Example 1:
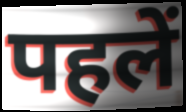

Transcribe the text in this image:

पहलें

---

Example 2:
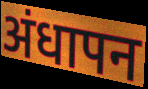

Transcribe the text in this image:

अंधापन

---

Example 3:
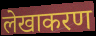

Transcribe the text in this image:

लेखाकरण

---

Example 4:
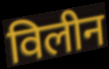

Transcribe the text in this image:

विलीन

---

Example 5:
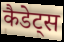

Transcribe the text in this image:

कैडेट्स